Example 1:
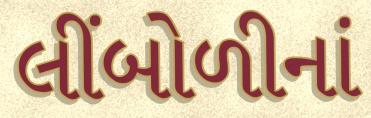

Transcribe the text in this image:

લીંબોળીનાં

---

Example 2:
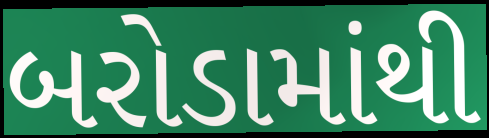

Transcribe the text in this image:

બરોડામાંથી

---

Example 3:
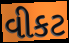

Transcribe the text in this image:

વીકટ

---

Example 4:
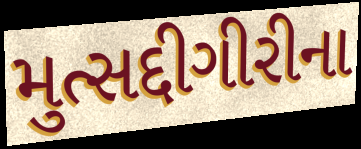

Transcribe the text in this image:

મુત્સદ્દીગીરીના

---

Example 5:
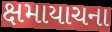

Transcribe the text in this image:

ક્ષમાયાચના